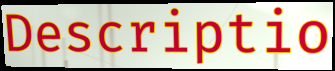
Descriptio